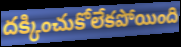
దక్కించుకోలేకపోయింది